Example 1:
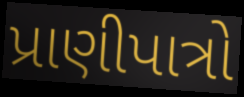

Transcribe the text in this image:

પ્રાણીપાત્રો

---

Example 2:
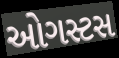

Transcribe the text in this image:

ઓગસ્ટસ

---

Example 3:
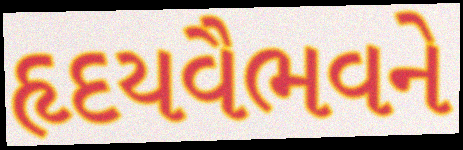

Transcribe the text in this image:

હૃદયવૈભવને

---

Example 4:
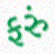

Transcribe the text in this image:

ફરું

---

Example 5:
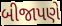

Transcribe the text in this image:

બીજાપણે